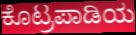
ಕೊಟ್ರಪಾಡಿಯ